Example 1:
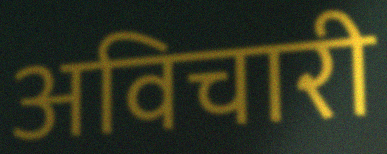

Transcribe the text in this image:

अविचारी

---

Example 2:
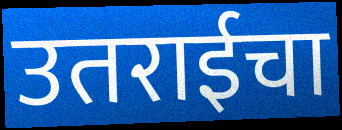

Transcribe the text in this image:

उतराईचा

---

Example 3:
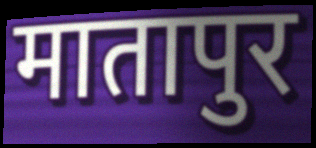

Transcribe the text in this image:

मातापुर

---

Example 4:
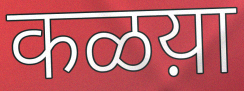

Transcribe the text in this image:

कळय़ा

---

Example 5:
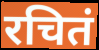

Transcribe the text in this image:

रचितं